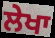
ਲੇਖਾ